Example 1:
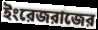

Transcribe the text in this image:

ইংরেজরাজের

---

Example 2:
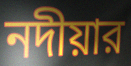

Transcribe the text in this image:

নদীয়ার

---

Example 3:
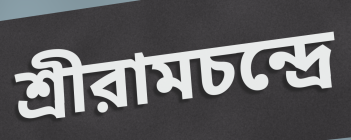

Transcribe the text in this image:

শ্রীরামচন্দ্রে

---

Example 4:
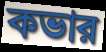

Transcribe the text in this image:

কভার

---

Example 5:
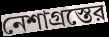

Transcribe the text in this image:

নেশাগ্রস্তের